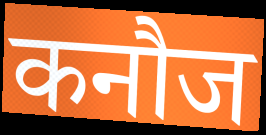
कनौज